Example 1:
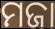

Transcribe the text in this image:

ମଜା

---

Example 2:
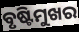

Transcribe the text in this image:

ବୃଷ୍ଟିମୁଖର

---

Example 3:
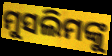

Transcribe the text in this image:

ମୁସଲିମଙ୍କୁ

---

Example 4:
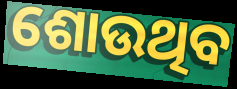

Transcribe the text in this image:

ଶୋଉଥିବ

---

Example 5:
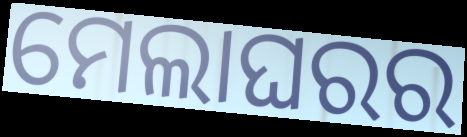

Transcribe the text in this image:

ମେଲାଘରର